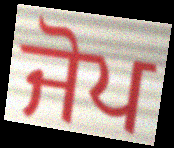
ਜੋਪ